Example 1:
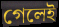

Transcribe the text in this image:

গেলেই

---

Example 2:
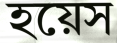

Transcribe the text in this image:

হয়েস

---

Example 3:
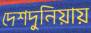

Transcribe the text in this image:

দেশদুনিয়ায়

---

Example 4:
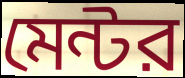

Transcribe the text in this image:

মেন্টর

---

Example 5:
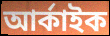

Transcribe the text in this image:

আর্কাইক